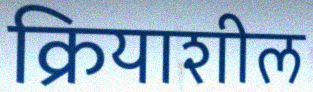
क्रियाशील